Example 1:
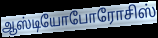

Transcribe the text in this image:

ஆஸ்டியோபோரோசிஸ்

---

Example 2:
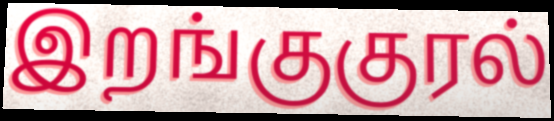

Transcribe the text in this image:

இறங்குகுரல்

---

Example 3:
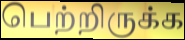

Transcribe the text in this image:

பெற்றிருக்க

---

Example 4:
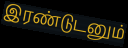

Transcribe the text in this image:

இரண்டுடனும்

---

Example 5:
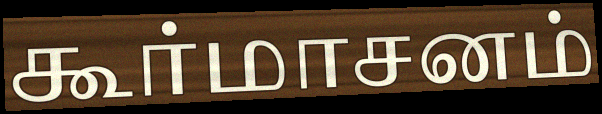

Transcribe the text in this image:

கூர்மாசனம்